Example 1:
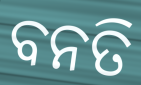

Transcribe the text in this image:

ବନତି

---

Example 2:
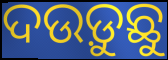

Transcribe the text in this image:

ଦଉଡ଼ୁଛୁ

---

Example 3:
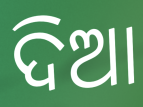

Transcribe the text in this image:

ଦିଆ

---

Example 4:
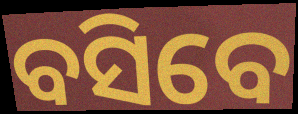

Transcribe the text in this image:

ବସିବେ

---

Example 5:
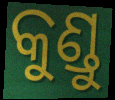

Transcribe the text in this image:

କୁଣ୍ଡୁ